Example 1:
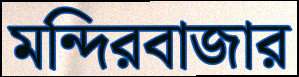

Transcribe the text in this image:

মন্দিরবাজার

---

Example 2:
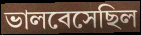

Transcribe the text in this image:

ভালবেসেছিল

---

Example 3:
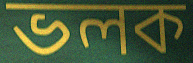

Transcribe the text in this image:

ভলক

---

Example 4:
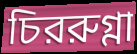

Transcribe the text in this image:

চিররুগ্না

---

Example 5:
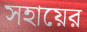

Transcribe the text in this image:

সহায়ের